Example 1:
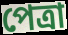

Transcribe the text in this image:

পেত্রা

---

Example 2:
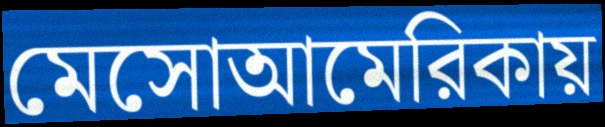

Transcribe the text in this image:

মেসোআমেরিকায়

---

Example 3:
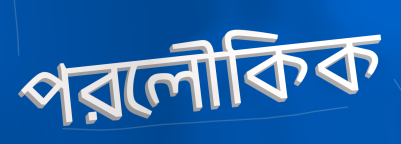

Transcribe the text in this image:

পরলৌকিক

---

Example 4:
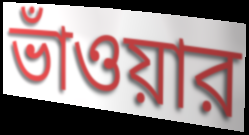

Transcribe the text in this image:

ভাঁওয়ার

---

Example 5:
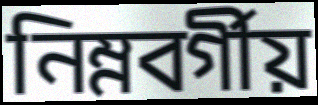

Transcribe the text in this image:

নিম্নবর্গীয়